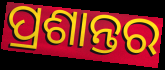
ପ୍ରଶାନ୍ତର